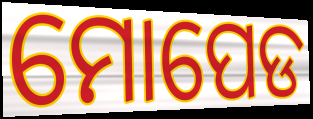
ମୋପେଡ